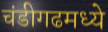
चंडीगढमध्ये